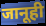
जानूही